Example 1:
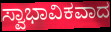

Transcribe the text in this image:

ಸ್ವಾಭಾವಿಕವಾದ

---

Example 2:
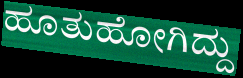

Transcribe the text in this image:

ಹೂತುಹೋಗಿದ್ದು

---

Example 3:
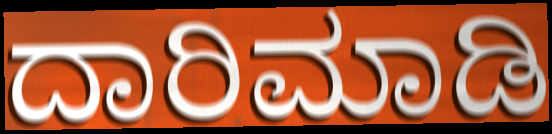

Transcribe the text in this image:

ದಾರಿಮಾಡಿ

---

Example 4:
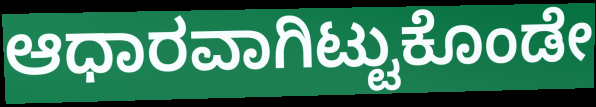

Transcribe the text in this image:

ಆಧಾರವಾಗಿಟ್ಟುಕೊಂಡೇ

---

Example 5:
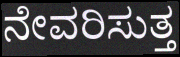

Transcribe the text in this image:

ನೇವರಿಸುತ್ತ